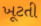
ખૂટતી